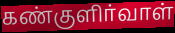
கண்குளிர்வாள்